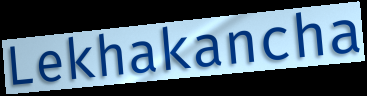
Lekhakancha